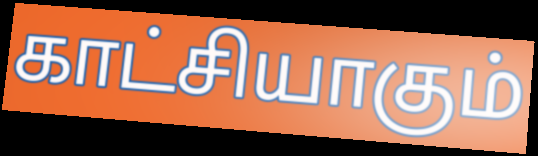
காட்சியாகும்